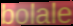
bolale